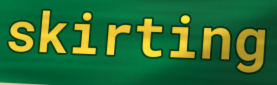
skirting